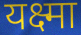
यक्ष्मा